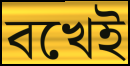
বখেই